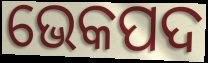
ଭେକପଦ